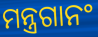
ମନ୍ତ୍ରଗାନଂ